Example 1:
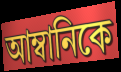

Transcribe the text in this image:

আম্বানিকে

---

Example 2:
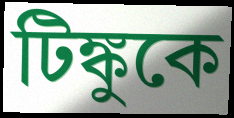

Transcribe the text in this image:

টিঙ্কুকে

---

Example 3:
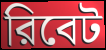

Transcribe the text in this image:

রিবেট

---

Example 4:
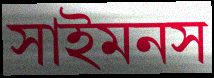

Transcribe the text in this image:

সাইমনস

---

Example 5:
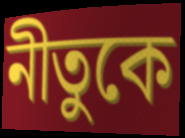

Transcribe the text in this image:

নীতুকে